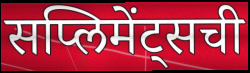
सप्लिमेंट्सची